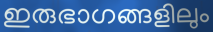
ഇരുഭാഗങ്ങളിലും